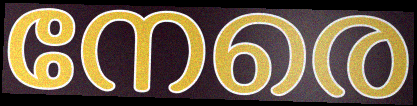
നേരെ